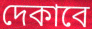
দেকাবে